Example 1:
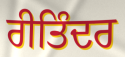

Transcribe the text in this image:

ਰੀਤਿੰਦਰ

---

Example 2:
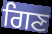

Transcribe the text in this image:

ਗਿਣ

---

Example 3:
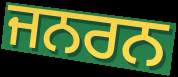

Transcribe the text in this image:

ਜਨਰਨ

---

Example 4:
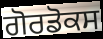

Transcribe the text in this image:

ਗੋਰਡੋਕਸ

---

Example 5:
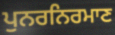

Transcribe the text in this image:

ਪੁਨਰਨਿਰਮਾਣ